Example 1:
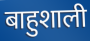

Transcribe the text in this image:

बाहुशाली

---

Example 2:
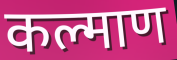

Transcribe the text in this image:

कल्माण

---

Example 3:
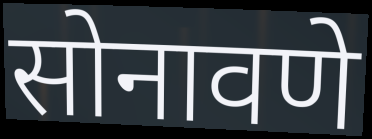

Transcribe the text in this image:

सोनावणे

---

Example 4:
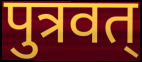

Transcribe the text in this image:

पुत्रवत्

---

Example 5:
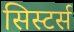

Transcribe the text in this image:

सिस्टर्स